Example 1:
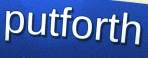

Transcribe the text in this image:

putforth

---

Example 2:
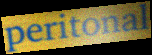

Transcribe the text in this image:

peritonal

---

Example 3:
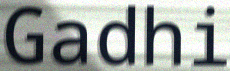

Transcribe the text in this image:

Gadhi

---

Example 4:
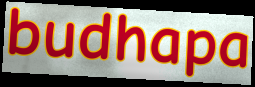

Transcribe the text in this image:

budhapa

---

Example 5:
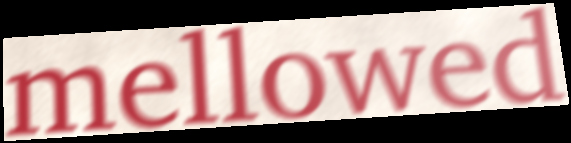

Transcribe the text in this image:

mellowed